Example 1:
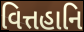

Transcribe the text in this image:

વિત્તહાનિ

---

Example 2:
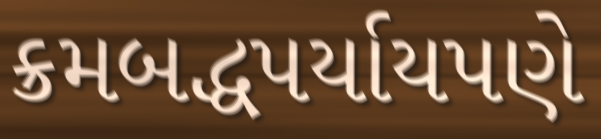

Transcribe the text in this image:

ક્રમબદ્ધપર્યાયપણે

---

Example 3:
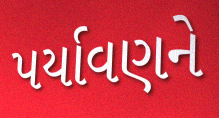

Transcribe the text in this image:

પર્યાવણને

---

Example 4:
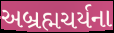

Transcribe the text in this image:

અબ્રહ્મચર્યના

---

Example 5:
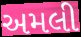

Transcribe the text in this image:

અમલી